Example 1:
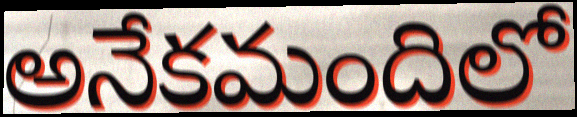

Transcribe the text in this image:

అనేకమందిలో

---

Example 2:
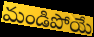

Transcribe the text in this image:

మండిపోయే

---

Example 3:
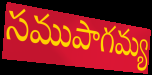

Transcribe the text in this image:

సముపాగమ్య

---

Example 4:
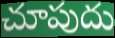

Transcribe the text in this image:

చూపుదు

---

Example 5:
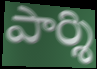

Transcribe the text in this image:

పార్శి